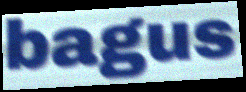
bagus